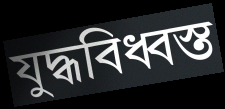
যুদ্ধবিধ্বস্ত